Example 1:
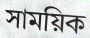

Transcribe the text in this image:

সাময়িক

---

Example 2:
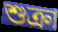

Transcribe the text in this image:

শুক্ৰা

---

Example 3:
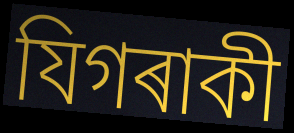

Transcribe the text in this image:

যিগৰাকী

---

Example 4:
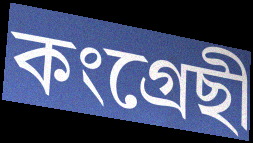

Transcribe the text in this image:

কংগ্ৰেছী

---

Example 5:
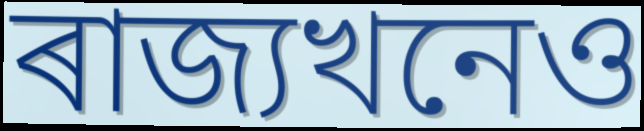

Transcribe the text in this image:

ৰাজ্যখনেও